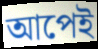
আপেই